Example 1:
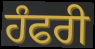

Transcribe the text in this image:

ਹੰਫਰੀ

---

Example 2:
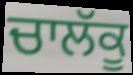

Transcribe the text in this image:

ਚਾਲੱਕੂ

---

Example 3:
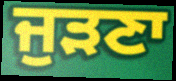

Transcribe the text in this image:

ਜੁੜਣਾ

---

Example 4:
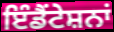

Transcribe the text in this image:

ਇੰਡੈਂਟੇਸ਼ਨਾਂ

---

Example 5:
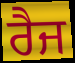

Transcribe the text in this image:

ਰੈਜ